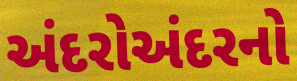
અંદરોઅંદરનો